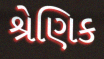
શ્રેણિક